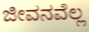
ಜೀವನವೆಲ್ಲ